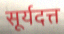
सूर्यदत्त